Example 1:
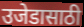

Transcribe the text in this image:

उजेडासाठी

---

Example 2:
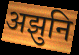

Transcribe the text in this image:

अझुनि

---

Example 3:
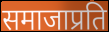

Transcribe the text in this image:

समाजाप्रति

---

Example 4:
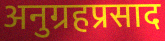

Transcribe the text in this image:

अनुग्रहप्रसाद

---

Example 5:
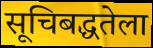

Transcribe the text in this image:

सूचिबद्धतेला